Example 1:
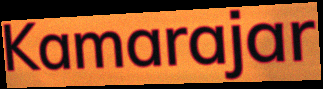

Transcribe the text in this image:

Kamarajar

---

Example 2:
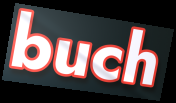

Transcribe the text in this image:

buch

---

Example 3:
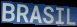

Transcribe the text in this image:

BRASIL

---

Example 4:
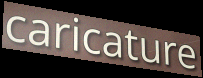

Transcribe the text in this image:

caricature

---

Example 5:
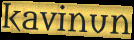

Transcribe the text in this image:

kavinun